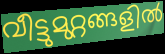
വീട്ടുമുറ്റങ്ങളിൽ